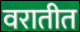
वरातीत